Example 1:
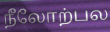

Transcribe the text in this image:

நீலோற்பல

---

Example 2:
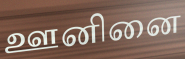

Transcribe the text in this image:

ஊனினை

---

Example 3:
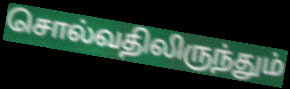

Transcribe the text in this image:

சொல்வதிலிருந்தும்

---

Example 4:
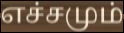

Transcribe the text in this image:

எச்சமும்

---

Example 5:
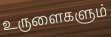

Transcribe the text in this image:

உருளைகளும்